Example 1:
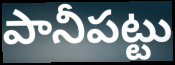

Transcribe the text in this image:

పానీపట్టు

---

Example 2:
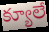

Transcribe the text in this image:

క్యూలే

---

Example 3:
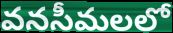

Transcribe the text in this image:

వనసీమలలో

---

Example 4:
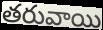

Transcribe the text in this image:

తరువాయి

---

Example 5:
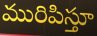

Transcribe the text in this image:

మురిపిస్తూ